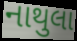
નાથુલા